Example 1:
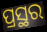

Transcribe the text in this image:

ପ୍ରସ୍ଥର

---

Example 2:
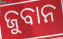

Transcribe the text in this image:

ଜୁବାନ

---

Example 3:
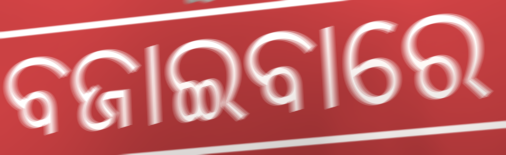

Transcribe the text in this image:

ବଜାଇବାରେ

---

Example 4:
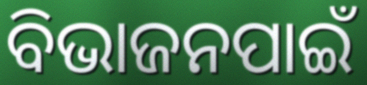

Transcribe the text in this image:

ବିଭାଜନପାଇଁ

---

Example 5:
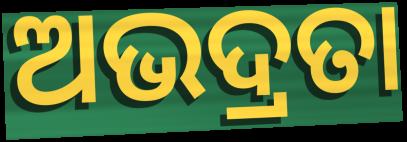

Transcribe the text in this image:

ଅଭଦ୍ରତା